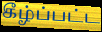
கீழ்ப்பட்ட